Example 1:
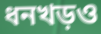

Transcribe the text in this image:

ধনখড়ও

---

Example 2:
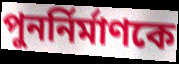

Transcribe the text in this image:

পুনর্নির্মাণকে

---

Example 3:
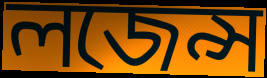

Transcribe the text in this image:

লজেন্স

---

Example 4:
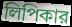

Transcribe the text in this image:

লিপিকার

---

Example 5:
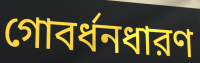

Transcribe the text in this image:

গোবর্ধনধারণ